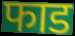
फाड